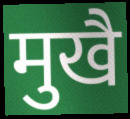
मुखै